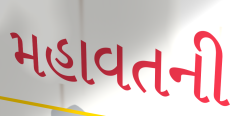
મહાવતની